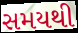
સમયથી